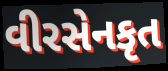
વીરસેનકૃત